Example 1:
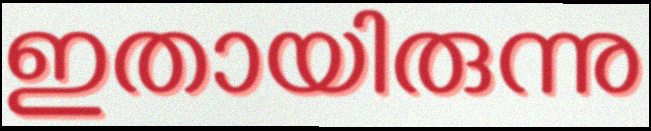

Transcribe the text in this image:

ഇതായിരുന്നു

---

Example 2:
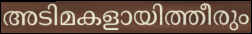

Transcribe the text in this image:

അടിമകളായിത്തീരും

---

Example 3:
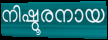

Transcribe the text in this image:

നിഷ്ഠൂരനായ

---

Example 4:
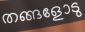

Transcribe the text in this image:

തങ്ങളോടു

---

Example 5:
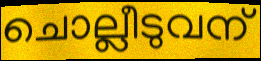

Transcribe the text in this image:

ചൊല്ലീടുവന്